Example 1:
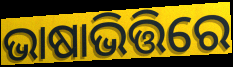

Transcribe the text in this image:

ଭାଷାଭିତ୍ତିରେ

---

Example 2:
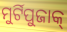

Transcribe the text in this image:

ମୁର୍ଟିପୁଜାକ୍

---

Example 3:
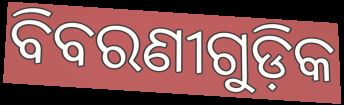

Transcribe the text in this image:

ବିବରଣୀଗୁଡ଼ିକ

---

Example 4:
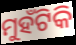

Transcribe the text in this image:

ମୁହଁଟିକି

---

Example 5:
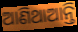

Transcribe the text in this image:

ଆଣିଥାଆନ୍ତି